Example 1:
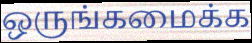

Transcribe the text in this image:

ஒருங்கமைக்க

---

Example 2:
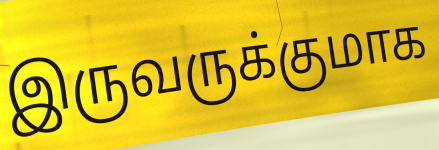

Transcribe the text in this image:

இருவருக்குமாக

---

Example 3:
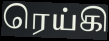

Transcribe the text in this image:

ரெய்கி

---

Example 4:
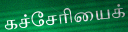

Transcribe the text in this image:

கச்சேரியைக்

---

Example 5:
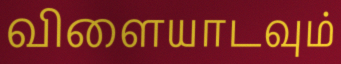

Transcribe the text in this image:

விளையாடவும்